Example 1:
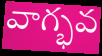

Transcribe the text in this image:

వాగ్భవ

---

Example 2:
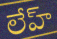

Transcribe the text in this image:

లేహ్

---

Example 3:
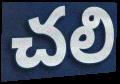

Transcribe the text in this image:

చలి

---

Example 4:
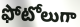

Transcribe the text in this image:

ఫోటోలుగా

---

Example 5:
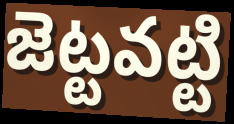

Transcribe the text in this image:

జెట్టవట్టి